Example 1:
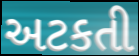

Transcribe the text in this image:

અટકતી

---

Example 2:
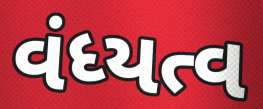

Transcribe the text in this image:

વંધ્યત્વ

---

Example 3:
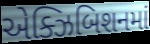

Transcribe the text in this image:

એક્ઝિબિશનમાં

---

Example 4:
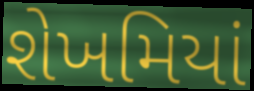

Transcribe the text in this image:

શેખમિયાં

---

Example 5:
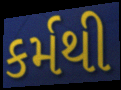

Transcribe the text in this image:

કર્મથી